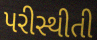
પરીસ્થીતી